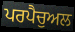
ਪਰਪੈਚੁਅਲ